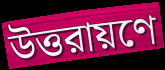
উত্তরায়ণে